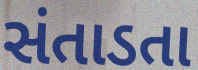
સંતાડતા